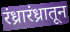
रंध्रारंध्रातून